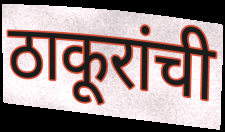
ठाकूरांची